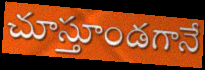
చూస్తూండగానే